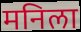
मनिला